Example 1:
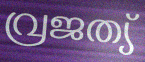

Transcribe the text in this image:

വ്രജത്യ്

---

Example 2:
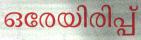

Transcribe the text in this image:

ഒരേയിരിപ്പ്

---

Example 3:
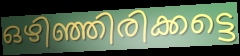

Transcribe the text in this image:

ഒഴിഞ്ഞിരിക്കട്ടെ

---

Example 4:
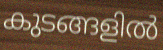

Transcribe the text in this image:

കുടങ്ങളിൽ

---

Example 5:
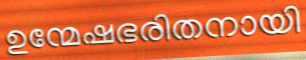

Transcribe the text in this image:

ഉന്മേഷഭരിതനായി